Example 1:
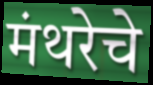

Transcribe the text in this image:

मंथरेचे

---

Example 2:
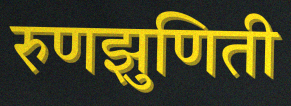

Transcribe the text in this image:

रुणझुणिती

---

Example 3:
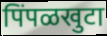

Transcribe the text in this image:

पिंपळखुटा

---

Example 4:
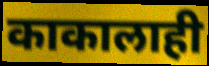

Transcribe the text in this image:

काकालाही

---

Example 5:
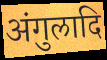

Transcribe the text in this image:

अंगुलादि